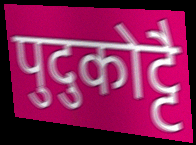
पुदुकोट्टै